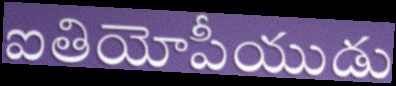
ఐతియోపీయుడు